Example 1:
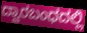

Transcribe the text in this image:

ದ್ವಾರಬಂಧದಲ್ಲಿ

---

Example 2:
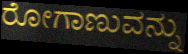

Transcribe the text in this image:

ರೋಗಾಣುವನ್ನು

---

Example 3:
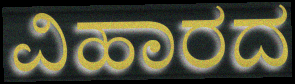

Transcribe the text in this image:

ವಿಹಾರದ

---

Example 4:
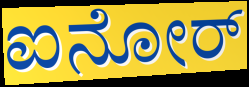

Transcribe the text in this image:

ಐನೋರ್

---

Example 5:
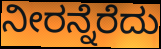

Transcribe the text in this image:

ನೀರನ್ನೆರೆದು